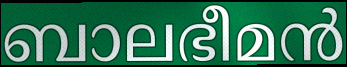
ബാലഭീമൻ